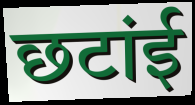
छटांई